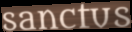
sanctus